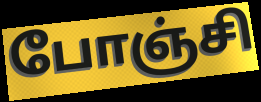
போஞ்சி